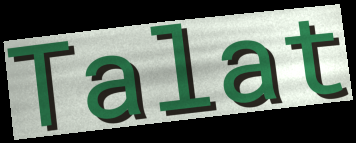
Talat